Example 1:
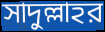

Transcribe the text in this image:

সাদুল্লাহর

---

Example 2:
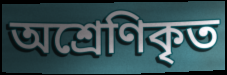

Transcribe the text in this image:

অশ্রেণিকৃত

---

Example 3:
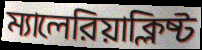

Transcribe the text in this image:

ম্যালেরিয়াক্লিষ্ট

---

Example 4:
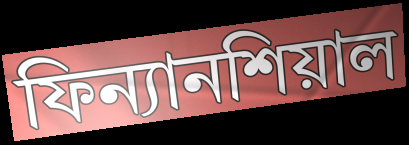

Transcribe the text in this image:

ফিন্যানশিয়াল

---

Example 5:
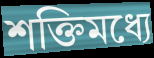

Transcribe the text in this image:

শক্তিমধ্যে